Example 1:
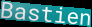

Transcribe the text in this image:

Bastien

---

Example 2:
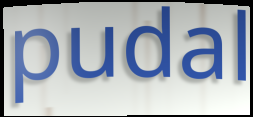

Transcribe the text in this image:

pudal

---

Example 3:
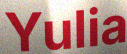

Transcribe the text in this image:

Yulia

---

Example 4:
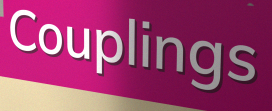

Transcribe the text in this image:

Couplings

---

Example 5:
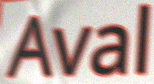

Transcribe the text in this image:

Aval